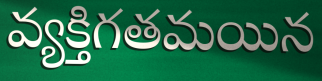
వ్యక్తిగతమయిన